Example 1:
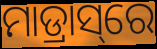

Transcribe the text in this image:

ମାଡ୍ରାସ୍‌ରେ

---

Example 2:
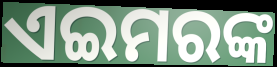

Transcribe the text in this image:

ଏଇମରଙ୍କ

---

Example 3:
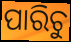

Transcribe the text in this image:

ପାରିଚୁ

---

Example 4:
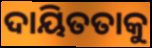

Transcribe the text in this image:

ଦାୟିତତାକୁ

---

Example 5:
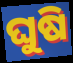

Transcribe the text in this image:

ଘୁଷି